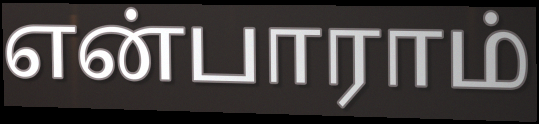
என்பாராம்